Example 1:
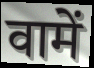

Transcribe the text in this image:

वामें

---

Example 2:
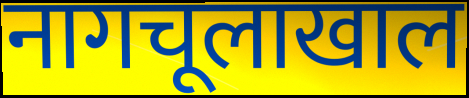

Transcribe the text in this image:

नागचूलाखाल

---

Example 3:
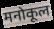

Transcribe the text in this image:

मनोकूल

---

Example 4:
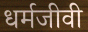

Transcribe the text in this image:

धर्मजीवी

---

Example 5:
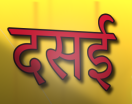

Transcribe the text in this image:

दसई